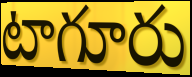
టాగూరు